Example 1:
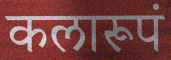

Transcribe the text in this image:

कलारूपं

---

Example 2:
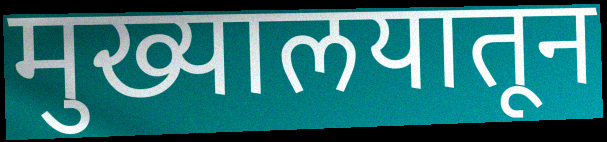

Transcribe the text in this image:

मुख्यालयातून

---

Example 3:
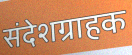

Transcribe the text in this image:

संदेशग्राहक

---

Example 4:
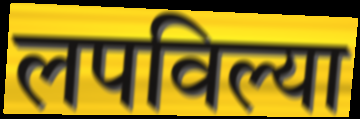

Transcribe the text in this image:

लपविल्या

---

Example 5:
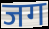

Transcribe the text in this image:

जग